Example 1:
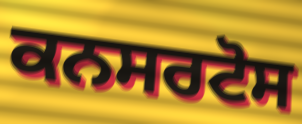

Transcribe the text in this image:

ਕਨਸਰਟੋਸ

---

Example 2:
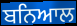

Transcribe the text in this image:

ਬਨਿਆਲ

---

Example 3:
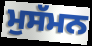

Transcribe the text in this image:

ਮੁਸੱਮਨ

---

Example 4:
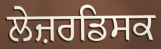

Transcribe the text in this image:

ਲੇਜ਼ਰਡਿਸਕ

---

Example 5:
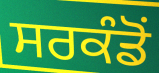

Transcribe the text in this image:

ਸਰਕੰਡੋਂ